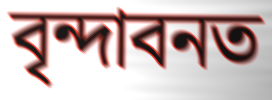
বৃন্দাবনত